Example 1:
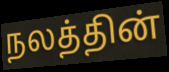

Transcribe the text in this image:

நலத்தின்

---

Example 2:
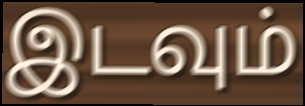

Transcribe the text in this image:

இடவும்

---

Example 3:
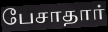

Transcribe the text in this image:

பேசாதார்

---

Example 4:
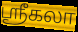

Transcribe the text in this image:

ஶ்ரீகலா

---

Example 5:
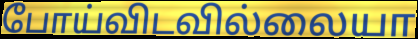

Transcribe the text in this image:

போய்விடவில்லையா